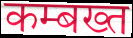
कम्बख्त